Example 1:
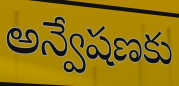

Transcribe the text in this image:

అన్వేషణకు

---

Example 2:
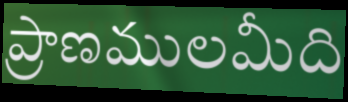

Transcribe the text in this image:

ప్రాణములమీది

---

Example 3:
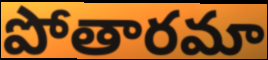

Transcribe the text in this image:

పోతారమా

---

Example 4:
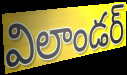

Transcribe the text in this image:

విలాండర్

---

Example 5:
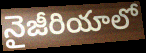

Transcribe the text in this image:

నైజీరియాలో